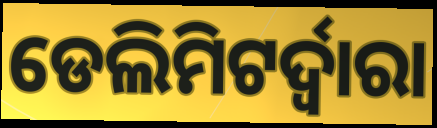
ଡେଲିମିଟର୍ଦ୍ୱାରା